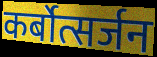
कर्बोत्सर्जन